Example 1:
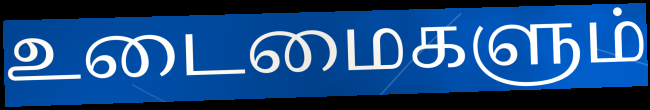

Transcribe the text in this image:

உடைமைகளும்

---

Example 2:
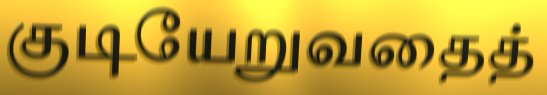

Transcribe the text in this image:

குடியேறுவதைத்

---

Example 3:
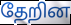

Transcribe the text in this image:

தேறின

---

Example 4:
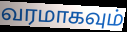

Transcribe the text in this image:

வரமாகவும்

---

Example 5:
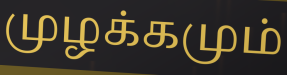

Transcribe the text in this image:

முழக்கமும்